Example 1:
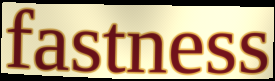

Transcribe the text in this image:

fastness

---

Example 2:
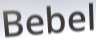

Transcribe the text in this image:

Bebel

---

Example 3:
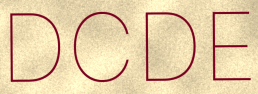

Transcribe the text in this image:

DCDE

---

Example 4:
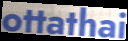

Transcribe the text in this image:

ottathai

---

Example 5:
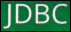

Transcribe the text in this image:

JDBC